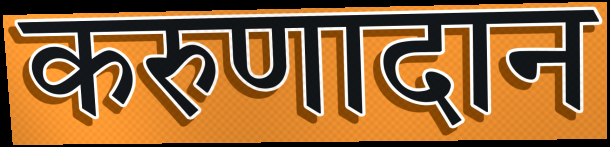
करुणादान